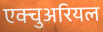
एक्चुअरियल